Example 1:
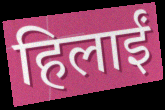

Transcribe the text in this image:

हिलाईं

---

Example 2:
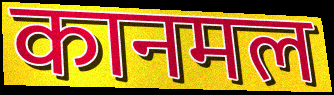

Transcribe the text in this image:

कानमल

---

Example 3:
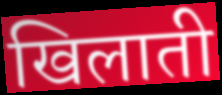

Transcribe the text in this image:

खिलाती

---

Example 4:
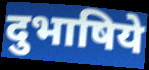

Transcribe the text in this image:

दुभाषिये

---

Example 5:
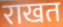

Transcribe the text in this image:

राखत